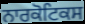
ਨਾਰਕੋਟਿਕਸ